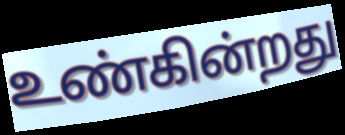
உண்கின்றது